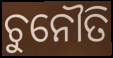
ଚୁନୌତି